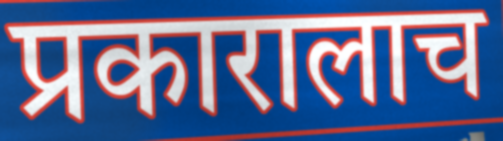
प्रकारालाच